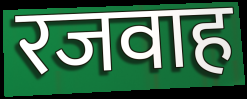
रजवाह